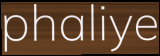
phaliye